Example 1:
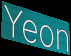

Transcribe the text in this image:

Yeon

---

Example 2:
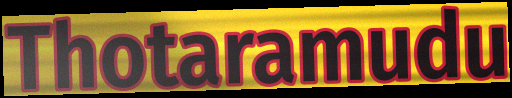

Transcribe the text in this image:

Thotaramudu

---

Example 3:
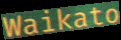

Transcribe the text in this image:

Waikato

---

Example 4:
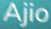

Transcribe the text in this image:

Ajio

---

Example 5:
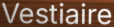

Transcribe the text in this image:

Vestiaire